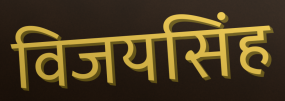
विजयसिंह